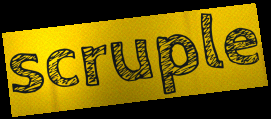
scruple